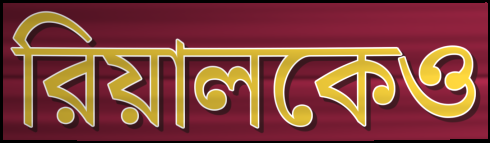
রিয়ালকেও